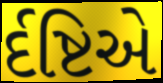
ર્દષ્ટિએ